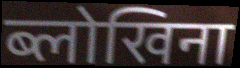
ब्लोखिना